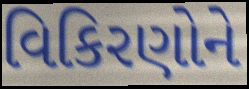
વિકિરણોને